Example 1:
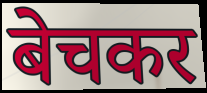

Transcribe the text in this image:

बेचकर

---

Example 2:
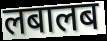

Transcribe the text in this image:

लबालब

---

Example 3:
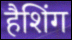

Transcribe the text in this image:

हैशिंग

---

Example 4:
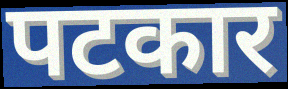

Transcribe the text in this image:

पटकार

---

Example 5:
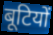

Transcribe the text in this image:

बूटियों